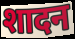
शादन